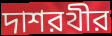
দাশরথীর